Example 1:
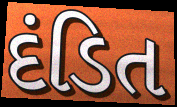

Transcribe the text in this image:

દંડિત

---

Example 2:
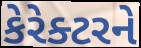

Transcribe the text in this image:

કેરેક્ટરને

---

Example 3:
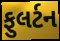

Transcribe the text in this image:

ફુલર્ટન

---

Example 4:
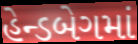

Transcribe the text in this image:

હેન્ડબેગમાં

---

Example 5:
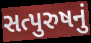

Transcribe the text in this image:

સત્પુરુષનું